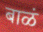
बाळं